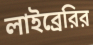
লাইব্রেরির